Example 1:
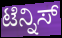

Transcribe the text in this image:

ಟೆನ್ನಿಸ್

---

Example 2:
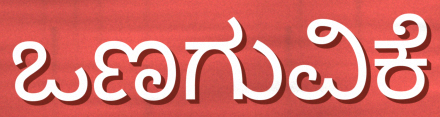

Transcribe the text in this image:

ಒಣಗುವಿಕೆ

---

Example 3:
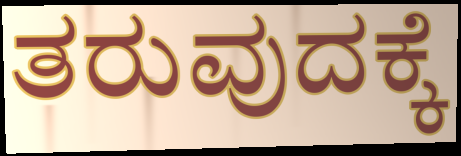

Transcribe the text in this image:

ತರುವುದಕ್ಕೆ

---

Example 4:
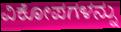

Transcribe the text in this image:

ವಿಕೋಪಗಳನ್ನು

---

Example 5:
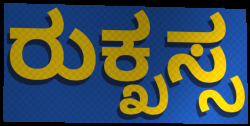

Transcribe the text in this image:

ರುಕ್ಖಸ್ಸ